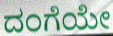
ದಂಗೆಯೇ